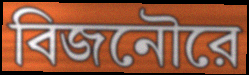
বিজনৌরে